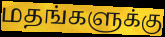
மதங்களுக்கு